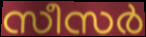
സീസർ